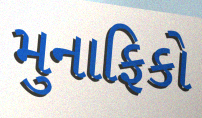
મુનાફિકો